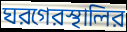
ঘরগেরস্থালির